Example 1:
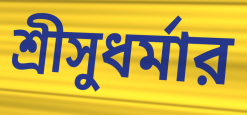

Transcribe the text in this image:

শ্রীসুধর্মার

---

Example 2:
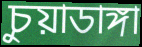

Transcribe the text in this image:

চুয়াডাঙ্গা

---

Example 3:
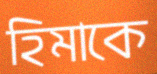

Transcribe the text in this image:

হিমাকে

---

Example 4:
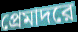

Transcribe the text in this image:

প্রেমাদরে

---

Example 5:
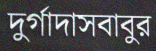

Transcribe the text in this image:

দুর্গাদাসবাবুর